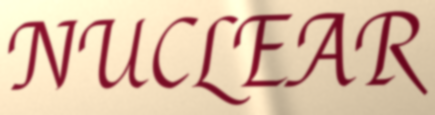
NUCLEAR